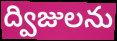
ద్విజులను